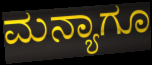
ಮನ್ಯಾಗೂ